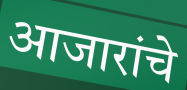
आजारांचे